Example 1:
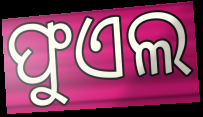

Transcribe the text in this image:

ଫୁଏଲ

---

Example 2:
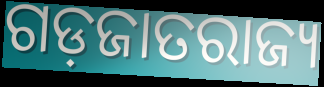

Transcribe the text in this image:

ଗଡ଼ଜାତରାଜ୍ୟ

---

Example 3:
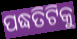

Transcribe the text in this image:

ପଦ୍ଧତିଟିକୁ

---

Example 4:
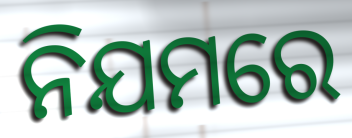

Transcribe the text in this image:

ନିଯମରେ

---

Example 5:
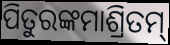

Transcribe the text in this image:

ପିତୁରଙ୍କମାଶ୍ରିତମ୍